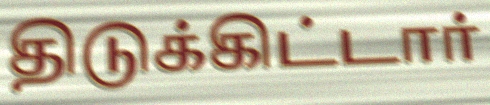
திடுக்கிட்டார்